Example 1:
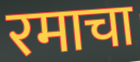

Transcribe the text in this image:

रमाचा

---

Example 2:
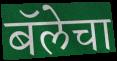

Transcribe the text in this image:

बॅलेचा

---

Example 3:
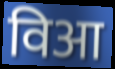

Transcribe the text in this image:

विआ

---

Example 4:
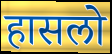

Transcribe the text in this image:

हासलो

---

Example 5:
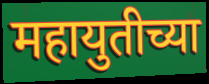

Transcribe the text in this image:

महायुतीच्या